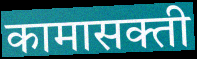
कामासक्ती